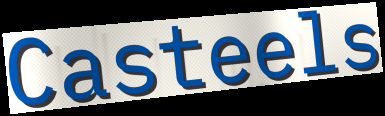
Casteels